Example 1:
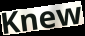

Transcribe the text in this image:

Knew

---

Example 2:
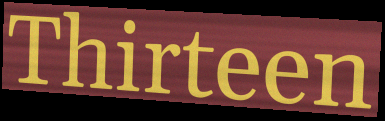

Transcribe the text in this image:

Thirteen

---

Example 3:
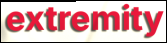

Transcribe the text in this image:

extremity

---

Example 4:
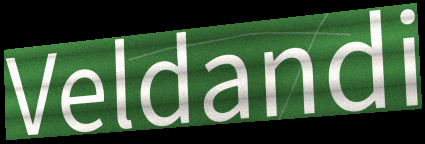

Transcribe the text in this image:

Veldandi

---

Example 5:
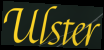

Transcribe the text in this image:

Ulster